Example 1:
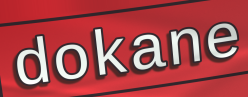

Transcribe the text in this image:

dokane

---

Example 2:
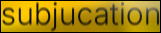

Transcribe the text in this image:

subjucation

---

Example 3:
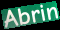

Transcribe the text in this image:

Abrin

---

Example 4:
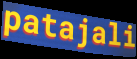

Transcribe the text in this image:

patajali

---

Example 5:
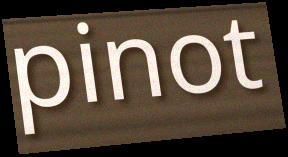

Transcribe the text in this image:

pinot